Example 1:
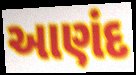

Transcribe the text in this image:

આણંદ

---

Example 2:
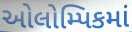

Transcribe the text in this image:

ઓલોમ્પિકમાં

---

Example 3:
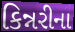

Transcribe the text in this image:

કિન્નરીના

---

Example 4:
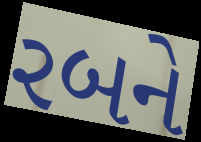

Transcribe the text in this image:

રબને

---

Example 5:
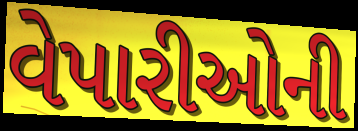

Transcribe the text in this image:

વેપારીઓની